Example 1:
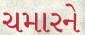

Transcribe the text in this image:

ચમારને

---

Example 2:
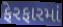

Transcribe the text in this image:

ફેરફારમાં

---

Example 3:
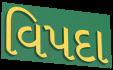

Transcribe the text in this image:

વિપદા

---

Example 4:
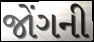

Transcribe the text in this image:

જોંગની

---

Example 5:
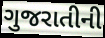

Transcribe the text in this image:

ગુજરાતીની